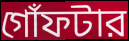
গোঁফটার